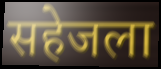
सहेजला